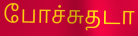
போச்சுதடா